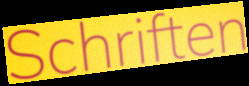
Schriften